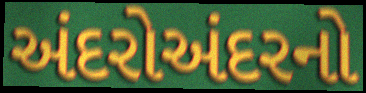
અંદરોઅંદરનો